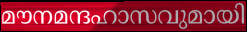
മൗനമന്ദഹാസവുമായി